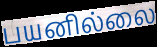
பயனில்லை